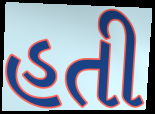
હતી